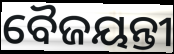
ବୈଜୟନ୍ତୀ